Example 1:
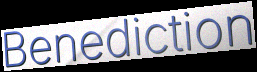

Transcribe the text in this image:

Benediction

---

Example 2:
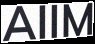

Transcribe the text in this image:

AIIM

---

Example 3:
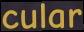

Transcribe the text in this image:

cular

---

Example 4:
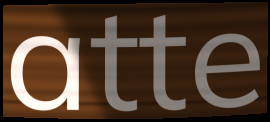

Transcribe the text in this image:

atte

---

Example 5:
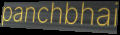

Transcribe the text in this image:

panchbhai